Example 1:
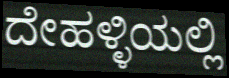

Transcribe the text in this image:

ದೇಹಳ್ಳಿಯಲ್ಲಿ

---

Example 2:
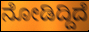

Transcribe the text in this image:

ನೋಡಿದ್ದಿದೆ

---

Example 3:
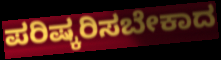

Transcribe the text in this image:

ಪರಿಷ್ಕರಿಸಬೇಕಾದ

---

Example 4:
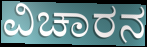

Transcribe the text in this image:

ವಿಚಾರನ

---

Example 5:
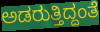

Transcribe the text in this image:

ಅಡರುತ್ತಿದ್ದಂತೆ